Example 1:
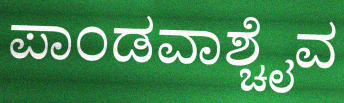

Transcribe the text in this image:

ಪಾಂಡವಾಶ್ಚೈವ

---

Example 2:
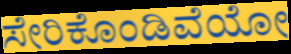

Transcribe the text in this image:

ಸೇರಿಕೊಂಡಿವೆಯೋ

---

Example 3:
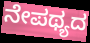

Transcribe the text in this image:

ನೇಪಥ್ಯದ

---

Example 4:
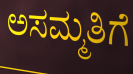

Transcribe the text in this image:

ಅಸಮ್ಮತಿಗೆ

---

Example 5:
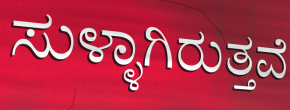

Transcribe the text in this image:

ಸುಳ್ಳಾಗಿರುತ್ತವೆ